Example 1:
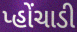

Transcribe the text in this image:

પ્હોંચાડી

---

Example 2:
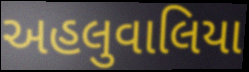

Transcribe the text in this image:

અહલુવાલિયા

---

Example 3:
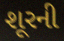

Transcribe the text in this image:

શૂરની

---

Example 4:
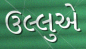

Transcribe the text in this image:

ઉલ્લુએ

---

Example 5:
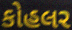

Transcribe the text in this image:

કોહલર